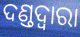
ଦଣ୍ଡଦ୍ୱାରା